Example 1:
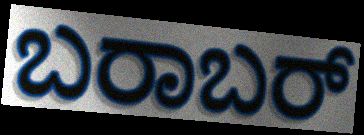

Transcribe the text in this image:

ಬರಾಬರ್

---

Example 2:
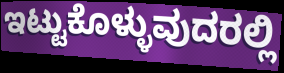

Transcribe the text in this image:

ಇಟ್ಟುಕೊಳ್ಳುವುದರಲ್ಲಿ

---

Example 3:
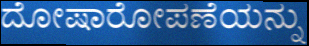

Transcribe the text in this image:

ದೋಷಾರೋಪಣೆಯನ್ನು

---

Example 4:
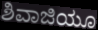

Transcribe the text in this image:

ಶಿವಾಜಿಯೂ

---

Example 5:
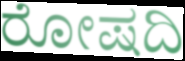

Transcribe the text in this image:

ರೋಷದಿ